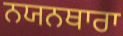
ਨਯਨਥਾਰਾ